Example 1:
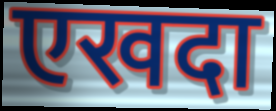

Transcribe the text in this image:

एखदा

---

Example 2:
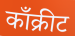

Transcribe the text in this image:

काँक्रीट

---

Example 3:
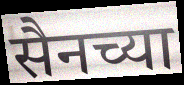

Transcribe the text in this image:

सैनच्या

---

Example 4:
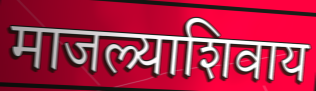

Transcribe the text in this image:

माजल्याशिवाय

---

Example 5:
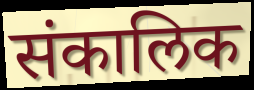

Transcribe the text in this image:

संकालिक